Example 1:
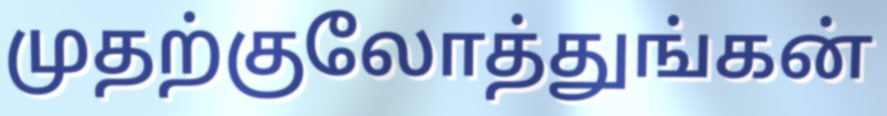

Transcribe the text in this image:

முதற்குலோத்துங்கன்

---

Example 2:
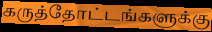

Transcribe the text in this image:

கருத்தோட்டங்களுக்கு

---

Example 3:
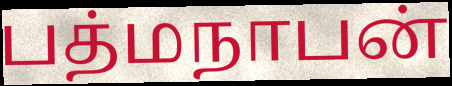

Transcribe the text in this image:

பத்மநாபன்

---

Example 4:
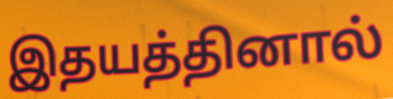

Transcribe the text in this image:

இதயத்தினால்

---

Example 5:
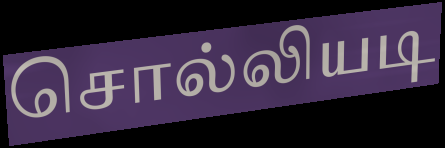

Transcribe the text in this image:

சொல்லியடி